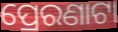
ପ୍ରେରଣାଟା